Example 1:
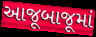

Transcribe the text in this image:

આજૂબાજૂમાં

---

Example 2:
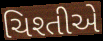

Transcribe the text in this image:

ચિશ્તીએ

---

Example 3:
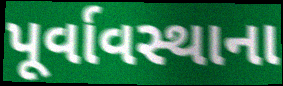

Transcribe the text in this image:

પૂર્વાવસ્થાના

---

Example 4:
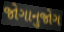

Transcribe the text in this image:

જોગાનુજોગ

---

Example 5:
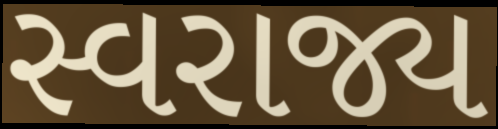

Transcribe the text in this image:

સ્વરાજ્ય